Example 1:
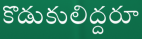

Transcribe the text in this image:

కొడుకులిద్దరూ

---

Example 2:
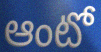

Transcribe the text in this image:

ఆంటో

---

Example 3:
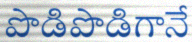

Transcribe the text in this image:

పొడిపొడిగానే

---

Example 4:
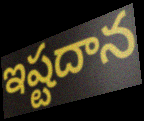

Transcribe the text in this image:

ఇష్టదాన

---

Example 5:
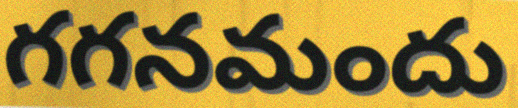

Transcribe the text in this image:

గగనమందు